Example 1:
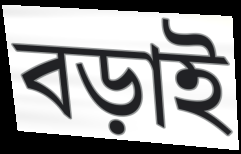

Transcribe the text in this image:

বড়াই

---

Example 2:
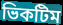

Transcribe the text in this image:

ভিকটিম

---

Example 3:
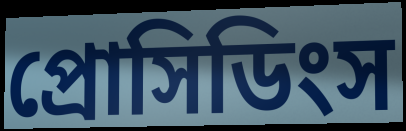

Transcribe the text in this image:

প্রোসিডিংস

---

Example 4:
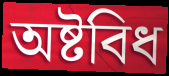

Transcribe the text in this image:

অষ্টবিধ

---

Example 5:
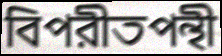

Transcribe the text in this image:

বিপরীতপন্থী